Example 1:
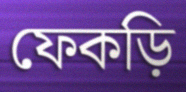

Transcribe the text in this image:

ফেকড়ি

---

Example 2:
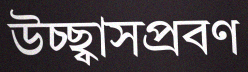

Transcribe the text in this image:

উচ্ছ্বাসপ্রবণ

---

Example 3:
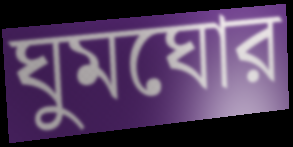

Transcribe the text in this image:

ঘুমঘোর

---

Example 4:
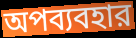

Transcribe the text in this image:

অপব্যবহার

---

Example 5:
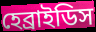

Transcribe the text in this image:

হেব্রাইডিস